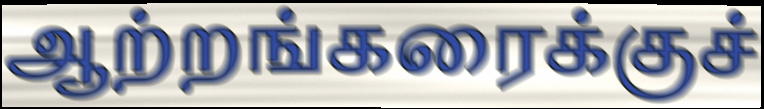
ஆற்றங்கரைக்குச்